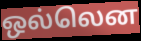
ஒல்லென